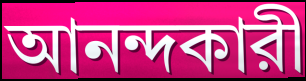
আনন্দকারী